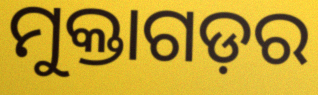
ମୁକ୍ତାଗଡ଼ର